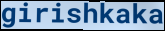
girishkaka